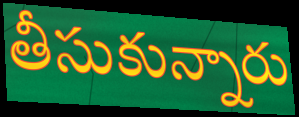
తీసుకున్నారు